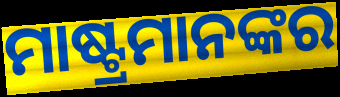
ମାଷ୍ଟ୍ରମାନଙ୍କର